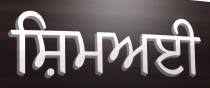
ਸ਼ਿਮਅਈ